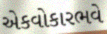
એકવોકારભવે